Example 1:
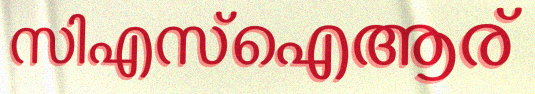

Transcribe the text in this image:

സിഎസ്ഐആര്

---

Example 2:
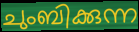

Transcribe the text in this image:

ചുംബിക്കുന്ന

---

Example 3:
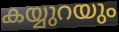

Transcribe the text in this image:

കയ്യുറയും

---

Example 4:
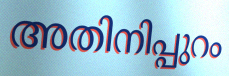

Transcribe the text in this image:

അതിനിപ്പുറം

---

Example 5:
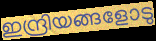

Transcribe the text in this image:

ഇന്ദ്രിയങ്ങളോടു